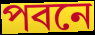
পবনে